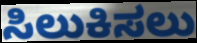
ಸಿಲುಕಿಸಲು